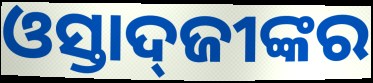
ଓସ୍ତାଦ୍‌ଜୀଙ୍କର